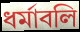
ধর্মাবলি